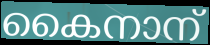
കൈനാന്